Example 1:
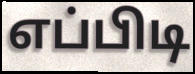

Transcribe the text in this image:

எப்பிடி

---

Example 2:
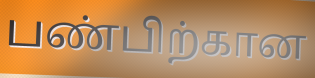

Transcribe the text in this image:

பண்பிற்கான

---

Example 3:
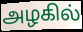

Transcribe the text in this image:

அழகில்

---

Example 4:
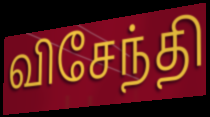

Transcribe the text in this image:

விசேந்தி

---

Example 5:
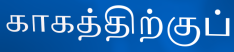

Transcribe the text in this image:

காகத்திற்குப்